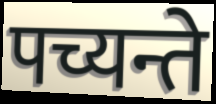
पच्यन्ते